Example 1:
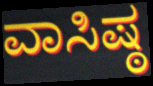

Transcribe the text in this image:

ವಾಸಿಷ್ಠ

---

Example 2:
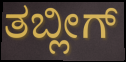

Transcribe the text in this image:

ತಬ್ಲೀಗ್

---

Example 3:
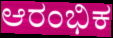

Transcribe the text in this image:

ಆರಂಭಿಕ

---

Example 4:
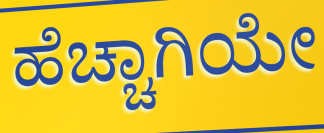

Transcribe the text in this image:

ಹೆಚ್ಚಾಗಿಯೇ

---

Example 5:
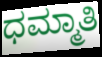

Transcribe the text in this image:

ಧಮ್ಮಾತಿ